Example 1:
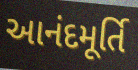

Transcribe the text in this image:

આનંદમૂર્તિ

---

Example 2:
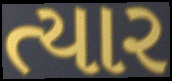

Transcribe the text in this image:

ત્‍યાર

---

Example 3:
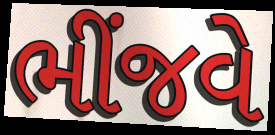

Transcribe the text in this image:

ભીંજવે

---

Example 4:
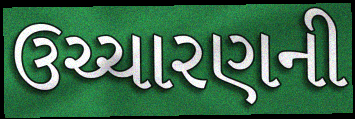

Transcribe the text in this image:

ઉચ્ચારણની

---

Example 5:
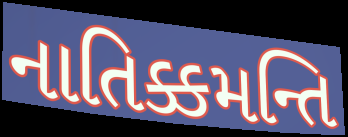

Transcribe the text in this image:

નાતિક્કમન્તિ